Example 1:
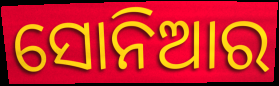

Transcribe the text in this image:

ସୋନିଆର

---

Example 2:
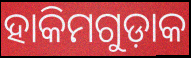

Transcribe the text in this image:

ହାକିମଗୁଡ଼ାକ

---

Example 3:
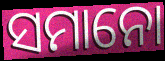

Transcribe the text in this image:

ସମାନୋ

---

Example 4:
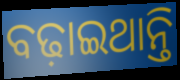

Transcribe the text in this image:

ବଢ଼ାଇଥାନ୍ତି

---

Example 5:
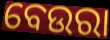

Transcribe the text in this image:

ବେଉରା